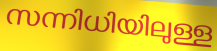
സന്നിധിയിലുള്ള